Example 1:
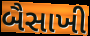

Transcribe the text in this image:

બૈસાખી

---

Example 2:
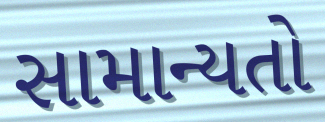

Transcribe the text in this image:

સામાન્યતો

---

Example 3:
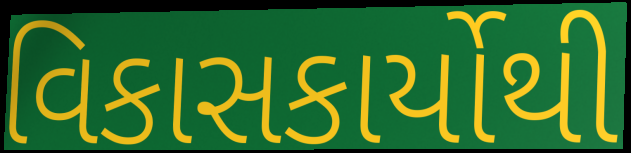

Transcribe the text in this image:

વિકાસકાર્યોથી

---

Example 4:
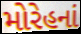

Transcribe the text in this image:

મોરેહનાં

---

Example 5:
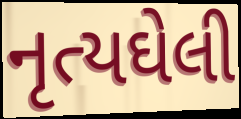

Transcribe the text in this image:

નૃત્યઘેલી